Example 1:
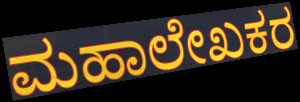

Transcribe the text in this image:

ಮಹಾಲೇಖಕರ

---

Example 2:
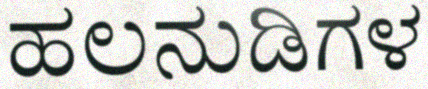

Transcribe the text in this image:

ಹಲನುಡಿಗಳ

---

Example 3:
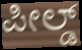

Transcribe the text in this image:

ಪೀಲ್ಡ್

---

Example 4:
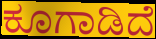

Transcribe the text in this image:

ಕೂಗಾಡಿದೆ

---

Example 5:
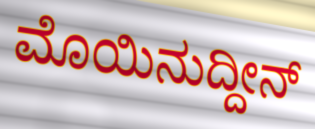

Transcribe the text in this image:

ಮೊಯಿನುದ್ದೀನ್